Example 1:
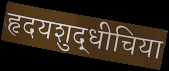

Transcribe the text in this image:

हृदयशुद्धीचिया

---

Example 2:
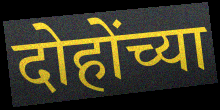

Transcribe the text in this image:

दोहोंच्या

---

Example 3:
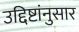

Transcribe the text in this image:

उद्दिष्टांनुसार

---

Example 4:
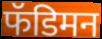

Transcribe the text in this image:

फॅडिमन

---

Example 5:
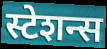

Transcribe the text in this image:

स्टेशन्स